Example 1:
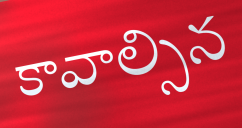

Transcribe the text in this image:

కావాల్సిన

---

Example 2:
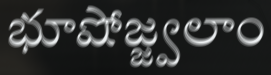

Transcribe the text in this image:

భూషోజ్జ్వలాం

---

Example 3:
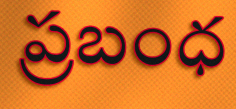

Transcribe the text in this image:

ప్రబంధ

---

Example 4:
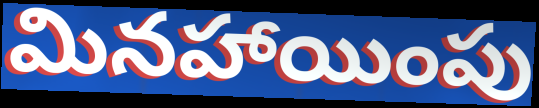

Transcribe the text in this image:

మినహాయింపు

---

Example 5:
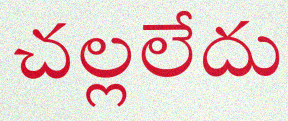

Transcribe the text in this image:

చల్లలేదు